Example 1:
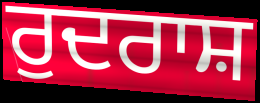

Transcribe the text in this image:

ਰੁਦਰਾਸ਼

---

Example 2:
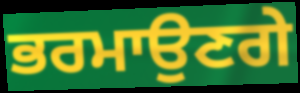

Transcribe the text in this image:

ਭਰਮਾਉਣਗੇ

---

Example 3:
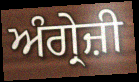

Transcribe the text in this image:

ਅੰਗ੍ਰੇਜ਼ੀ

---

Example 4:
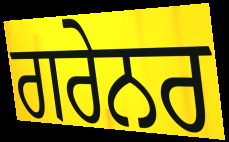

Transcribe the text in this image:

ਗਰੇਨਰ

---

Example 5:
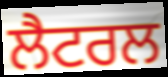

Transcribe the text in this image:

ਲੈਟਰਲ